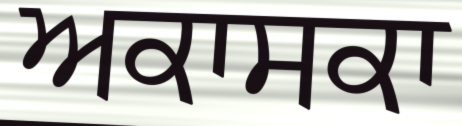
ਅਕਾਸਕਾ